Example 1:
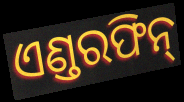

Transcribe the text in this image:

ଏଣ୍ଡରଫିନ୍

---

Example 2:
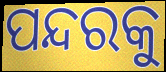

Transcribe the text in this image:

ପନ୍ଦରକୁ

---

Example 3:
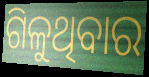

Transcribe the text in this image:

ଗିଳୁଥିବାର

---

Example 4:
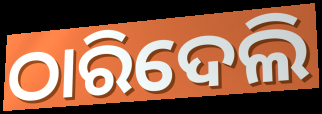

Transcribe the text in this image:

ଠାରିଦେଲି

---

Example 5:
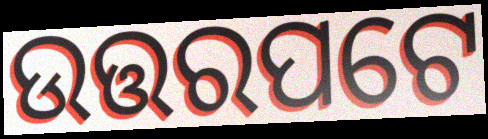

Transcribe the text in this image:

ଉତ୍ତରପଟେ